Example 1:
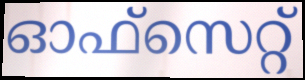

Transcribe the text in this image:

ഓഫ്സെറ്റ്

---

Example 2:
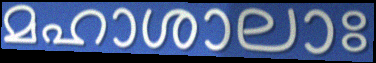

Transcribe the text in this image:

മഹാശാലാഃ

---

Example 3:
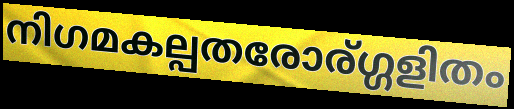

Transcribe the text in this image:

നിഗമകല്പതരോര്ഗ്ഗളിതം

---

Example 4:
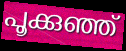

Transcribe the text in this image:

പൂക്കുഞ്ഞ്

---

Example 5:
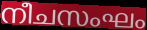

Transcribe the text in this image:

നീചസംഘം